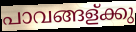
പാവങ്ങള്ക്കു